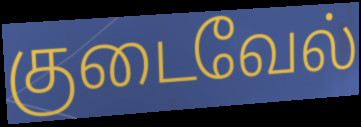
குடைவேல்